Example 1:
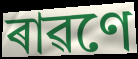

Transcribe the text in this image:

ৰাৱণে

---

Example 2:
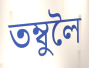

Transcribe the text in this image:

তম্বুলৈ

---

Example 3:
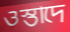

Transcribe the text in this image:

ওস্তাদে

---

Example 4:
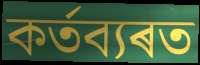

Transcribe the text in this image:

কৰ্তব্যৰত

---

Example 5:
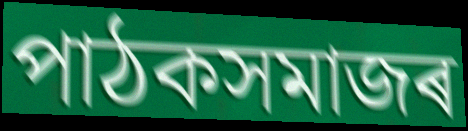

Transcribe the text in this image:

পাঠকসমাজৰ